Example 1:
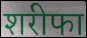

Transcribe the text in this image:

शरीफा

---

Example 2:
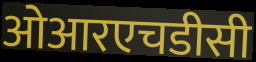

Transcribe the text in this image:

ओआरएचडीसी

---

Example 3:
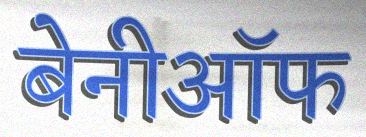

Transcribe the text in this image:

बेनीऑफ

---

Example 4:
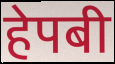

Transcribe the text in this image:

हेपबी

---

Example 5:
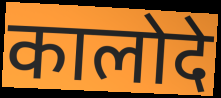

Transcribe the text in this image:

कालोदे